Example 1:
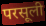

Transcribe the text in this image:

परसूली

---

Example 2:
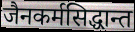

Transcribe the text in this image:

जैनकर्मसिद्धान्त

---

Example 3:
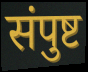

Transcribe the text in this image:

संपुष्ट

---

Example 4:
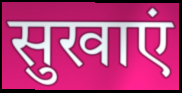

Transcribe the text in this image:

सुखाएं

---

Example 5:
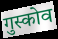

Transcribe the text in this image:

गुस्कोव